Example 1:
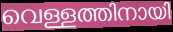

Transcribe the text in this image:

വെള്ളത്തിനായി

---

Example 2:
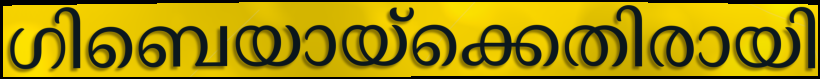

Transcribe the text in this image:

ഗിബെയായ്ക്കെതിരായി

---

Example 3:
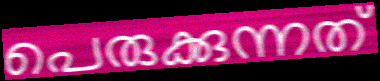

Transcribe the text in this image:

പെരുക്കുന്നത്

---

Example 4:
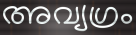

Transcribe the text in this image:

അവ്യഗ്രം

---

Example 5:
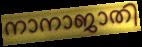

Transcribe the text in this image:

നാനാജാതി